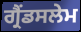
ਗ੍ਰੈਂਡਸਲੇਮ